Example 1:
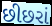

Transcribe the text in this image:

છીછરાં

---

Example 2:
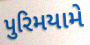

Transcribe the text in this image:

પુરિમયામે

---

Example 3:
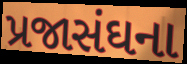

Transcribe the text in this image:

પ્રજાસંઘના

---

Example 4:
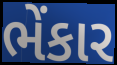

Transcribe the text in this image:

ભેંકાર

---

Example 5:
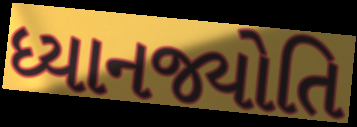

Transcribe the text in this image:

ધ્યાનજ્યોતિ